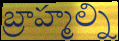
బ్రాహ్మల్ని